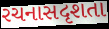
રચનાસદૃશતા